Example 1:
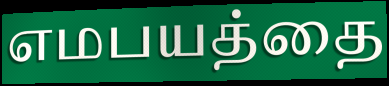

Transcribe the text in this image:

எமபயத்தை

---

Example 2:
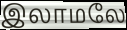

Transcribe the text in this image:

இலாமலே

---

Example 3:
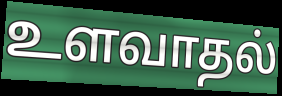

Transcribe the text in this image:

உளவாதல்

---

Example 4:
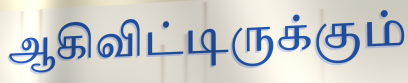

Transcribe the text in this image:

ஆகிவிட்டிருக்கும்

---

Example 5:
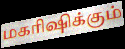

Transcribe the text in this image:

மகரிஷிக்கும்